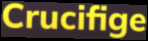
Crucifige